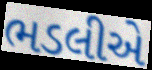
ભડલીએ